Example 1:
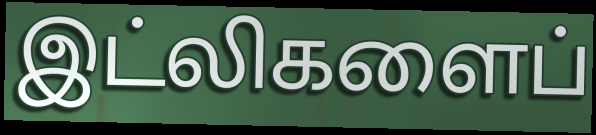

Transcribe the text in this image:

இட்லிகளைப்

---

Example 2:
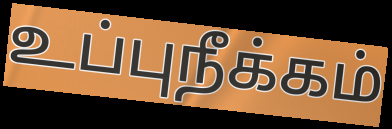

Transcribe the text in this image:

உப்புநீக்கம்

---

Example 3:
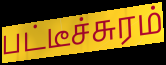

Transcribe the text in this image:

பட்டீச்சுரம்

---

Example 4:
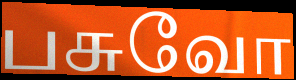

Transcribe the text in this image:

பசுவோ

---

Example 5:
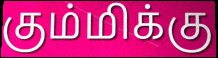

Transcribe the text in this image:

கும்மிக்கு